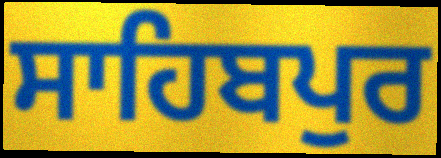
ਸਾਹਿਬਪੁਰ